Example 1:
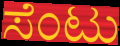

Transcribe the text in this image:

ಸೆಂಟು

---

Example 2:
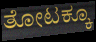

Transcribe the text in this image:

ತೋಟಕ್ಕೂ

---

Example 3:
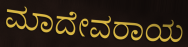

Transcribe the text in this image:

ಮಾದೇವರಾಯ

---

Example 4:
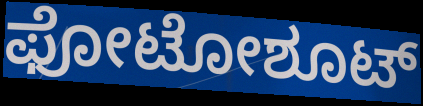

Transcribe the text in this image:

ಫೋಟೋಶೂಟ್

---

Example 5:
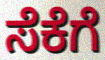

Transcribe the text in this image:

ಸೆಕೆಗೆ